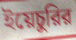
ইয়েচুরির